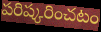
పరిష్కరించటం